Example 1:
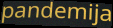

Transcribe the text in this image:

pandemija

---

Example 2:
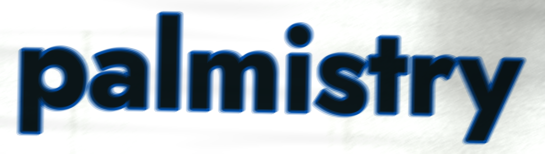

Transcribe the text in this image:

palmistry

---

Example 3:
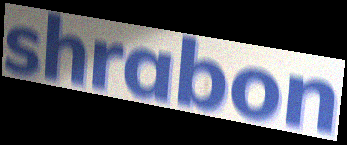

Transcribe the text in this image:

shrabon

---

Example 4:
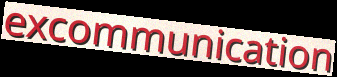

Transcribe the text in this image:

excommunication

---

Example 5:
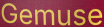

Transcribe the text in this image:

Gemuse